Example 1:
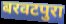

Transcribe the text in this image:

बरवटपुरा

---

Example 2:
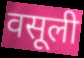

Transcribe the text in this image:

वसूली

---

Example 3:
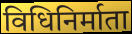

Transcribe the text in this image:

विधिनिर्माता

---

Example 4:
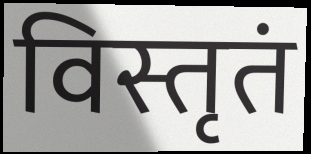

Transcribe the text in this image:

विस्तृतं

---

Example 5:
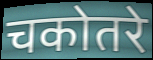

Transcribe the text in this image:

चकोतरे